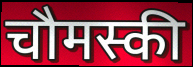
चौमस्की